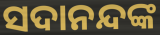
ସଦାନନ୍ଦଙ୍କ